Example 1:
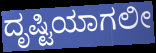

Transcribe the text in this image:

ದೃಷ್ಟಿಯಾಗಲೀ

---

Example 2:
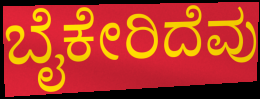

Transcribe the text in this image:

ಬೈಕೇರಿದೆವು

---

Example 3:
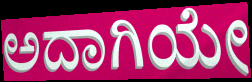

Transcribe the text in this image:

ಅದಾಗಿಯೇ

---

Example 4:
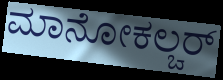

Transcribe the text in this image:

ಮಾನೋಕಲ್ಚರ್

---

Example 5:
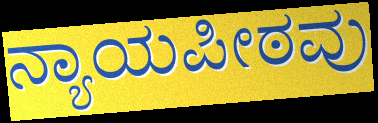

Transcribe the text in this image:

ನ್ಯಾಯಪೀಠವು